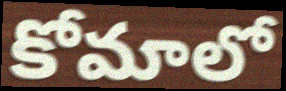
కోమాలో